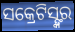
ସକ୍ରେଟିସ୍ଙ୍କର